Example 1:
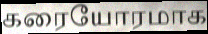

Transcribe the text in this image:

கரையோரமாக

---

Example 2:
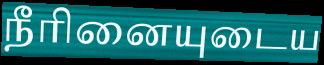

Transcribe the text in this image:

நீரினையுடைய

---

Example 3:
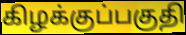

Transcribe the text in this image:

கிழக்குப்பகுதி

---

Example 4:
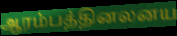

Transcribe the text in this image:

ஆரம்பத்தினலனய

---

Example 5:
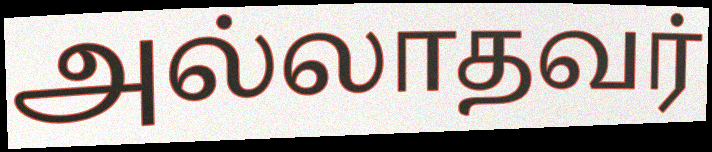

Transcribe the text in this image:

அல்லாதவர்